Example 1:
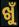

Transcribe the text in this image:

ଖୁଁ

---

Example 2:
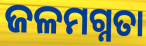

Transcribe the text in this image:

ଜଳମଗ୍ନତା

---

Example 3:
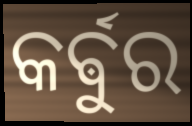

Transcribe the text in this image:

କର୍ଵୁର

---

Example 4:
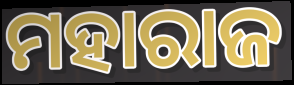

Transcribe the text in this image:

ମହାରାଜ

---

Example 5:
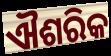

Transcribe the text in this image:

ଐଶରିକ